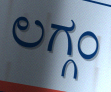
ಲಗ್ಗಂ